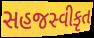
સહજસ્વીકૃત